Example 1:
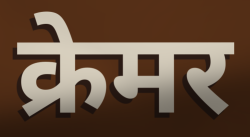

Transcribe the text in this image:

क्रेमर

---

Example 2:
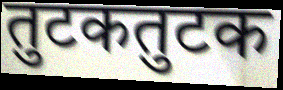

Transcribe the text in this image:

तुटकतुटक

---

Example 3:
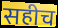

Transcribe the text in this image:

सहीच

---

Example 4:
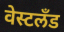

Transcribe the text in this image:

वेस्टलँड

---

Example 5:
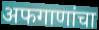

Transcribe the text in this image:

अफगाणांचा